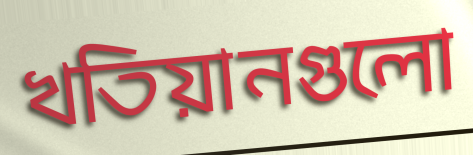
খতিয়ানগুলো